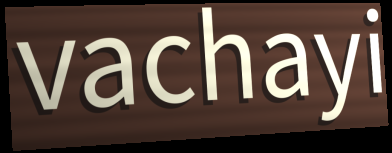
vachayi